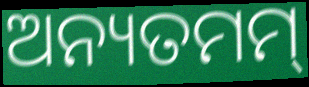
ଅନ୍ୟତମମ୍